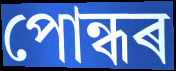
পোন্ধৰ